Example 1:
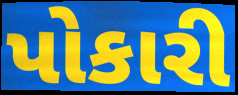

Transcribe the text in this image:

પોકારી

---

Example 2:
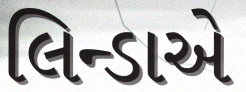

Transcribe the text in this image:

લિન્ડાએ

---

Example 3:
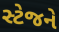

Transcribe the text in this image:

સ્ટેજને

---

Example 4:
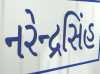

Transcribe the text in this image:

નરેન્દ્રસિંહ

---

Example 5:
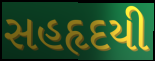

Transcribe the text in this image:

સહહૃદયી